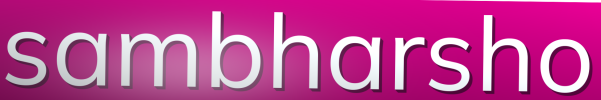
sambharsho